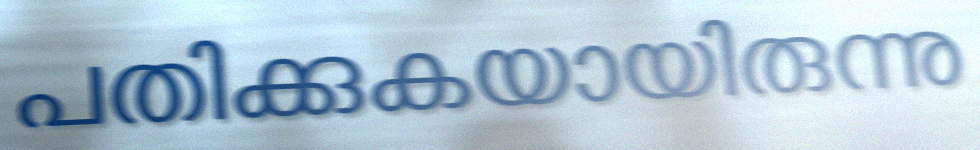
പതിക്കുകയായിരുന്നു